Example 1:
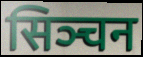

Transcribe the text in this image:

सिञ्चन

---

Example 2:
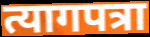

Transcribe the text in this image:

त्यागपत्रा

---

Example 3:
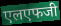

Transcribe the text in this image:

एलएफजी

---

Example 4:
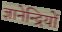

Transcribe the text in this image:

ज्ञानेन्द्रियों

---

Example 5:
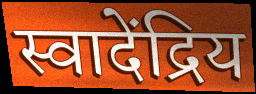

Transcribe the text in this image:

स्वादेंद्रिय